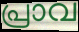
പ്രാവ